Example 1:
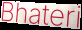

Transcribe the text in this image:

Bhateri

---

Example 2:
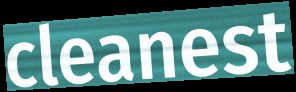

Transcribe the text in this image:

cleanest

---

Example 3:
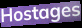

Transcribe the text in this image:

Hostages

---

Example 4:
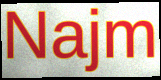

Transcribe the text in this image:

Najm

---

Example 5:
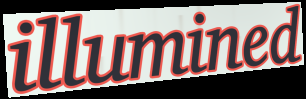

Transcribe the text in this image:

illumined